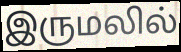
இருமலில்